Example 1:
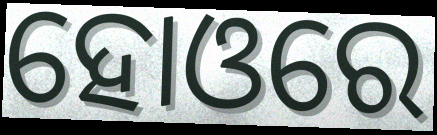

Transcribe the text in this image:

ହୋଓରେ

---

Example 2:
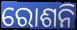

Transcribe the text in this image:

ରୋଶନି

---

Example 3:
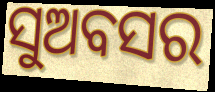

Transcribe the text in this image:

ସୁଅବସର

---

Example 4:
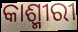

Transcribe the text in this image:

କାଶ୍ମୀରୀ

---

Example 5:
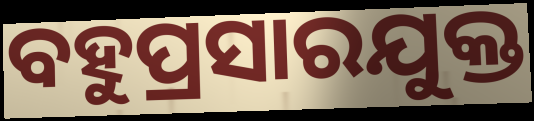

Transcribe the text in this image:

ବହୁପ୍ରସାରଯୁକ୍ତ